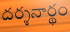
దర్శనార్థం